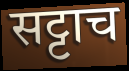
सट्टाच